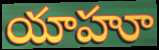
యాహూ